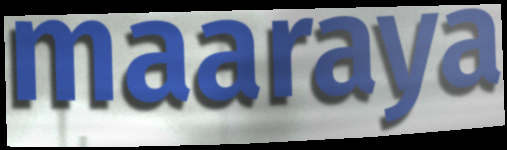
maaraya